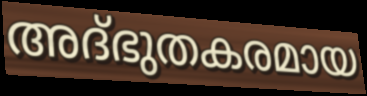
അദ്ഭുതകരമായ